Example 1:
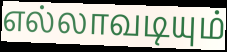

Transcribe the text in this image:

எல்லாவடியும்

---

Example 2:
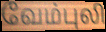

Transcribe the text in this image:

வேம்புலி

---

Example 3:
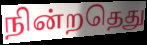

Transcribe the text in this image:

நின்றதெது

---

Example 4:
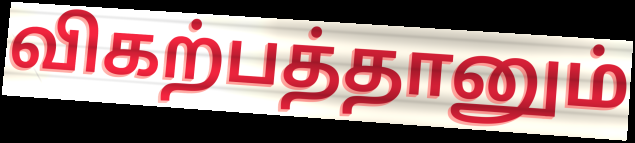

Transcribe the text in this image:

விகற்பத்தானும்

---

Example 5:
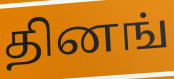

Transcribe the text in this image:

தினங்